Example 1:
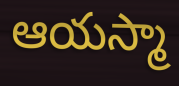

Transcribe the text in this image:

ఆయస్మా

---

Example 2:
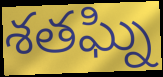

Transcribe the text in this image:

శతఘ్ని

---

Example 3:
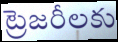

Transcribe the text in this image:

ట్రెజరీలకు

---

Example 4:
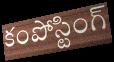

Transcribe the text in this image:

కంపోస్టింగ్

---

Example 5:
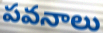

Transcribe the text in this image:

పవనాలు